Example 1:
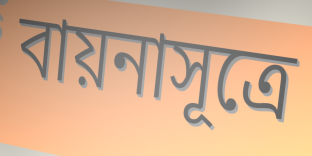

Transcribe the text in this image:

বায়নাসূত্রে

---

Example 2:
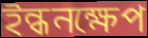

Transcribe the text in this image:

ইন্ধনক্ষেপ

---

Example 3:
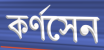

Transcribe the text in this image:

কর্ণসেন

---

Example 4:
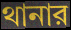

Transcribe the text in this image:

থানার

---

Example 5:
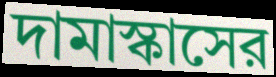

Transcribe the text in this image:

দামাস্কাসের